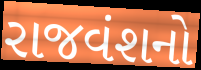
રાજવંશનો